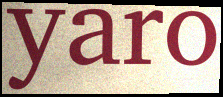
yaro